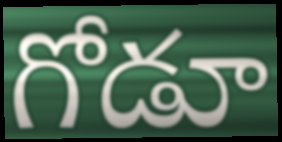
గోడూ